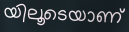
യിലൂടെയാണ്